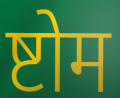
ष्टोम